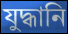
যুদ্ধানি